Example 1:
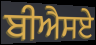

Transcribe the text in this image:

ਬੀਐਸਏ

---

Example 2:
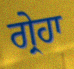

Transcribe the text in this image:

ਗ੍ਰੇਹਾ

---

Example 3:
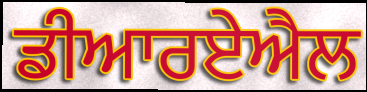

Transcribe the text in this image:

ਡੀਆਰਏਐਲ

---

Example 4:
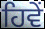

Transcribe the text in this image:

ਹਿਵੇਂ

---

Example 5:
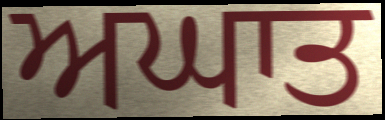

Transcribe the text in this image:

ਅਘਾਤ